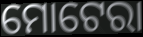
ମୋଟେରା